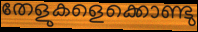
തേളുകളെക്കൊണ്ടു